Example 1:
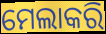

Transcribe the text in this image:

ମେଲାକରି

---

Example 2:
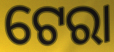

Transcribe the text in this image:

ଟେରା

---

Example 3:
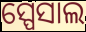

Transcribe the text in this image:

ସ୍ପେସାଲ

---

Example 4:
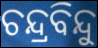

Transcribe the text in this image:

ଚନ୍ଦ୍ରବିନ୍ଦୁ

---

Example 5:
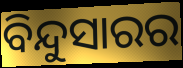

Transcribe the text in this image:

ବିନ୍ଦୁସାରର